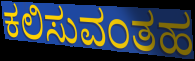
ಕಲಿಸುವಂತಹ